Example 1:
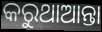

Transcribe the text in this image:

କରୁଥାଆନ୍ତା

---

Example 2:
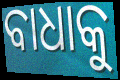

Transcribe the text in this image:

ବାଧାକୁ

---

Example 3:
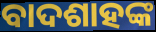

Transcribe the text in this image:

ବାଦଶାହଙ୍କ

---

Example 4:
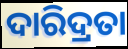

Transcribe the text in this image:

ଦାରିଦ୍ରତା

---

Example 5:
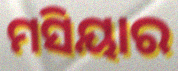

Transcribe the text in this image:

ମସିୟାର